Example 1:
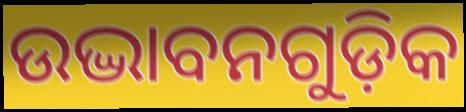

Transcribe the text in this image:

ଉଦ୍ଭାବନଗୁଡ଼ିକ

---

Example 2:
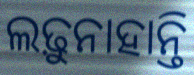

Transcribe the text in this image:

ଲଢ଼ୁନାହାନ୍ତି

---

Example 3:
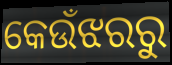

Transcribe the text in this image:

କେଉଁଝରରୁ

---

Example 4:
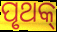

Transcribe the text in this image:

ପୃଥକ୍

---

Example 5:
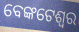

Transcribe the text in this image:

ବେଙ୍କଟେଶ୍ୱର